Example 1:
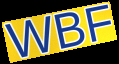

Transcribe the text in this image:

WBF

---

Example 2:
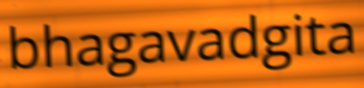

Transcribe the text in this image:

bhagavadgita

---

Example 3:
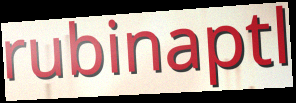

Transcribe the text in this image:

rubinaptl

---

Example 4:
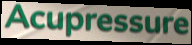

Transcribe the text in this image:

Acupressure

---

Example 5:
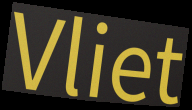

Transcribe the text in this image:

Vliet